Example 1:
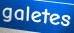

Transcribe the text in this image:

galetes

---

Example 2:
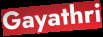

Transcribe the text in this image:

Gayathri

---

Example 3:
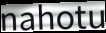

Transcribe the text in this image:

nahotu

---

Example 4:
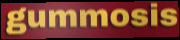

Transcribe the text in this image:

gummosis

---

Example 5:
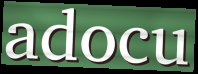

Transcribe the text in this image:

adocu